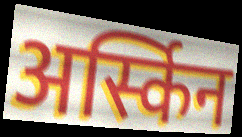
अर्स्किन